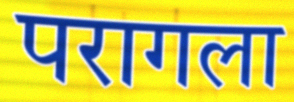
परागला